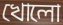
খোলো